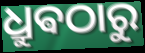
ଧ୍ରୁଵଠାରୁ